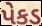
પેકડ